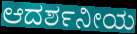
ಆದರ್ಶನೀಯ